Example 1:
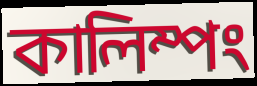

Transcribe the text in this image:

কালিম্পং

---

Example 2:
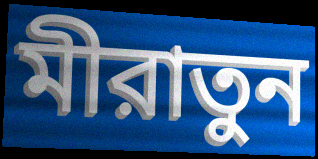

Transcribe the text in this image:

মীরাতুন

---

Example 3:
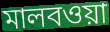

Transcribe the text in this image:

মালবওয়া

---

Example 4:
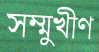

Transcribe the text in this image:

সম্মুখীণ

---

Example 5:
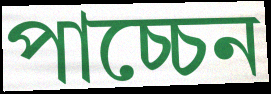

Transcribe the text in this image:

পাচ্চেন